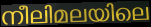
നീലിമലയിലെ